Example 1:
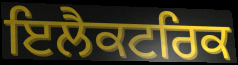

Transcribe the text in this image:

ਇਲੈਕਟਰਿਕ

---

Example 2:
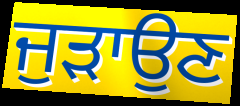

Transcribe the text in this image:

ਜੁੜਾਉਣ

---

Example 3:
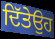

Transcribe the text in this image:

ਦਿੱਤੇਉਹ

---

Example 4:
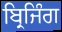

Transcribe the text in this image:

ਬ੍ਰਿਜਿੰਗ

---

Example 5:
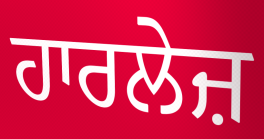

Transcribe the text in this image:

ਹਾਰਲੇਜ਼